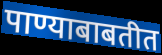
पाण्याबाबतीत